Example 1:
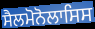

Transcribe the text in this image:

ਸੈਲਮੋਨੋਲਾਸਿਸ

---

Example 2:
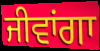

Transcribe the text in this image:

ਜੀਵਾਂਗਾ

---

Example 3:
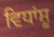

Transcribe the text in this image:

ਵਿਧਾਂਸ਼ੂ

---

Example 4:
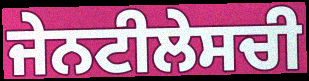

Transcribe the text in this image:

ਜੇਨਟੀਲੇਸਚੀ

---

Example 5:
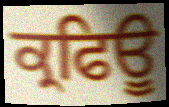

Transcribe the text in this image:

ਕ੍ਰਫਿਊ